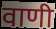
वाणी